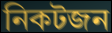
নিকটজন